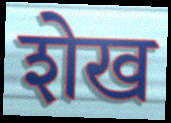
शेख